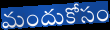
మందుకోసం